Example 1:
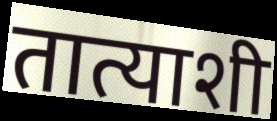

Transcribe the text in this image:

तात्याशी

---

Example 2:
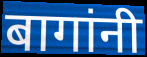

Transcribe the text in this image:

बागांनी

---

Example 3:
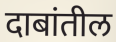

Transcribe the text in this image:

दाबांतील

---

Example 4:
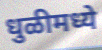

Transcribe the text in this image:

धुळीमध्ये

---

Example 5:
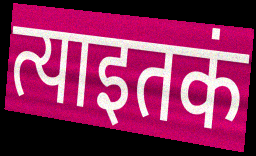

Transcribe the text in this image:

त्याइतकं